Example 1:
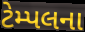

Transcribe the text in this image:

ટેમ્પલના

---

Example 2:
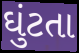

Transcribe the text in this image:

ઘુંટતા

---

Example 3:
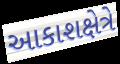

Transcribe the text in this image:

આકાશક્ષેત્રે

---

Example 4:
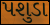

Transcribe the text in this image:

પશુડા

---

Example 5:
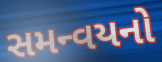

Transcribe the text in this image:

સમન્વયનો